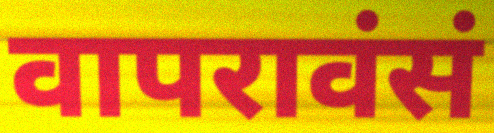
वापरावंसं